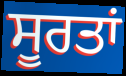
ਸੂਰਤਾਂ